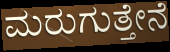
ಮರುಗುತ್ತೇನೆ